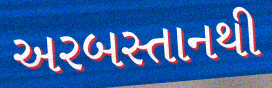
અરબસ્તાનથી